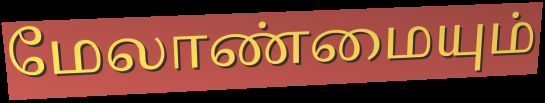
மேலாண்மையும்